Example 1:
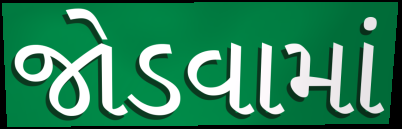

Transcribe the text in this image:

જોડવામાં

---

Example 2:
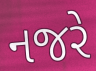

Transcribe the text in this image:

નજરે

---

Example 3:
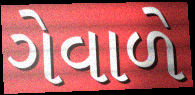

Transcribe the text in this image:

ગેવાળે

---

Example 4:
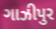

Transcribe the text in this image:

ગાઝીપુર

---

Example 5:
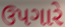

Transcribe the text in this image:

ઉપગારે